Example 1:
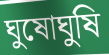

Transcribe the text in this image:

ঘুষোঘুষি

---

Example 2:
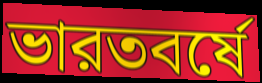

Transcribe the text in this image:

ভারতবর্ষে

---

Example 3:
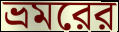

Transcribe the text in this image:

ভ্রমরের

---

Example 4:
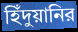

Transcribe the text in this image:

হিঁদুয়ানির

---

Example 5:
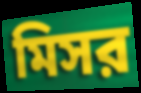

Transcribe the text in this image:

মিসর